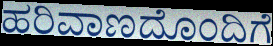
ಹರಿವಾಣದೊಂದಿಗೆ